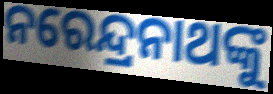
ନରେନ୍ଦ୍ରନାଥଙ୍କୁ